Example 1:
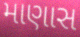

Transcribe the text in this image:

માણાસ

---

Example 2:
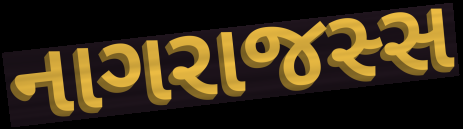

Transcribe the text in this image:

નાગરાજસ્સ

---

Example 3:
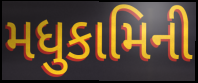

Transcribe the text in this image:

મધુકામિની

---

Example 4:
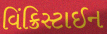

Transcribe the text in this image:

વિંક્રિસ્ટાઈન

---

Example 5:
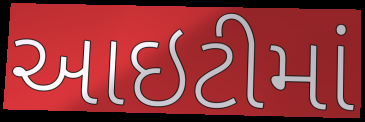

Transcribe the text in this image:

આઇટીમાં